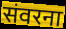
संवरना